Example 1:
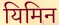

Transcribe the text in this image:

यिमिन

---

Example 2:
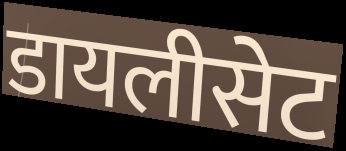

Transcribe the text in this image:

डायलीसेट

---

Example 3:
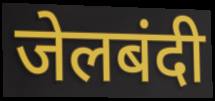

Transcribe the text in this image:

जेलबंदी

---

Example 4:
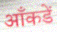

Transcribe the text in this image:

आँकडें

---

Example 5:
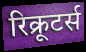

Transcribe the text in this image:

रिक्रूटर्स